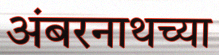
अंबरनाथच्या